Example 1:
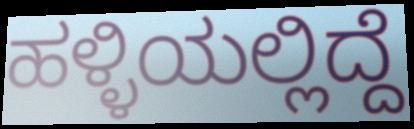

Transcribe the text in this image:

ಹಳ್ಳಿಯಲ್ಲಿದ್ದೆ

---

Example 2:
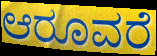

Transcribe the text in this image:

ಆರೂವರೆ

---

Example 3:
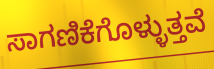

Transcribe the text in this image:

ಸಾಗಣಿಕೆಗೊಳ್ಳುತ್ತವೆ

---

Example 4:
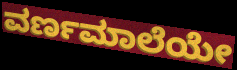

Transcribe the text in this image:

ವರ್ಣಮಾಲೆಯೇ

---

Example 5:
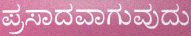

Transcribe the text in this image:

ಪ್ರಸಾದವಾಗುವುದು